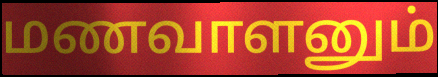
மணவாளனும்